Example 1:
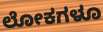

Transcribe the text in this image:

ಲೋಕಗಳೂ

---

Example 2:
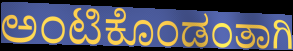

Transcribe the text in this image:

ಅಂಟಿಕೊಂಡಂತಾಗಿ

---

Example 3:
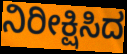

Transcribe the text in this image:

ನಿರೀಕ್ಷಿಸಿದ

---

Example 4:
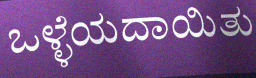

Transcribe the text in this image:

ಒಳ್ಳೆಯದಾಯಿತು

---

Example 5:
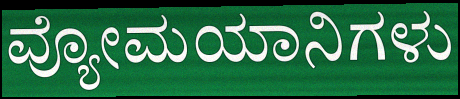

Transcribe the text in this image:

ವ್ಯೋಮಯಾನಿಗಳು